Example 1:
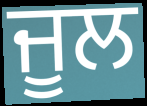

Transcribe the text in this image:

ਜੂਲ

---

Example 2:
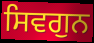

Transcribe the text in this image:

ਸਿਵਗੁਨ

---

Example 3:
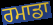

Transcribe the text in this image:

ਰਮਾਡਾ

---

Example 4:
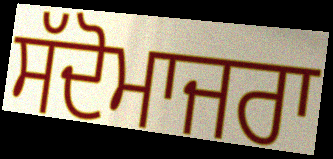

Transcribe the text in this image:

ਸੱਦੋਮਾਜਰਾ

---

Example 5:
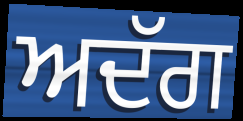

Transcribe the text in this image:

ਅਦੱਗ